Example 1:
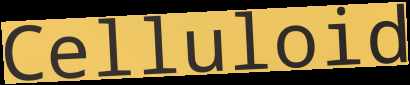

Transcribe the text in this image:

Celluloid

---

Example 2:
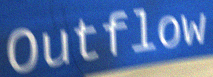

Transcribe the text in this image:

Outflow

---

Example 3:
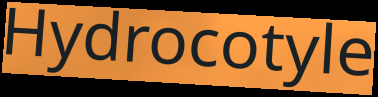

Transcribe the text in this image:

Hydrocotyle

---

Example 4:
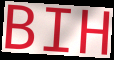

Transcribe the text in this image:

BIH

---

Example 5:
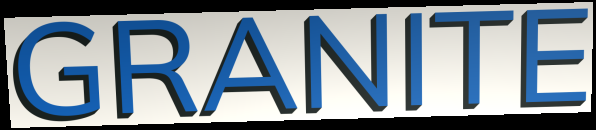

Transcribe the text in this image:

GRANITE